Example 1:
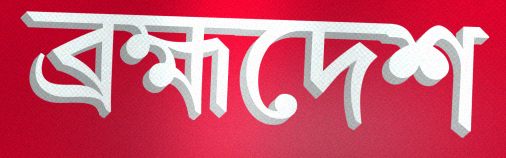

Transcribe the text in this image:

ব্রহ্মদেশ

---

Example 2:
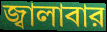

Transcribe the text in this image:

জ্বালাবার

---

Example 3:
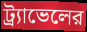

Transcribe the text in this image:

ট্র্যাভেলের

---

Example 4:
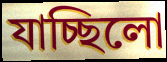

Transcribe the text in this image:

যাচ্ছিলো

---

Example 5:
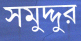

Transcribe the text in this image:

সমুদ্দুর